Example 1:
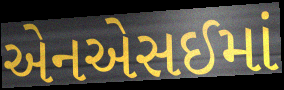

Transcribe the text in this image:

એનએસઈમાં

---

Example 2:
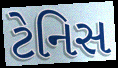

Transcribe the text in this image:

ટેનિસ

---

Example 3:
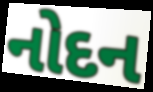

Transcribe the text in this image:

નોદન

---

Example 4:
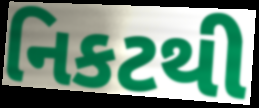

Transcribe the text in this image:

નિકટથી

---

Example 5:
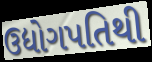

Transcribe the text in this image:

ઉદ્યોગપતિથી